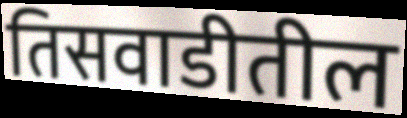
तिसवाडीतील